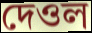
দেওল